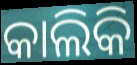
କାଲିକି